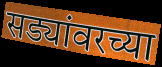
सड्यांवरच्या